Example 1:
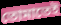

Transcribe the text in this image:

তোমাতেই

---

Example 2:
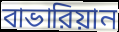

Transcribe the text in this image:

বাভারিয়ান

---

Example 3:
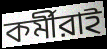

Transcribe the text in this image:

কর্মীরাই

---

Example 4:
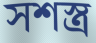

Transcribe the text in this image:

সশস্ত্র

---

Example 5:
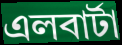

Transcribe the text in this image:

এলবার্টা